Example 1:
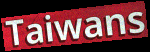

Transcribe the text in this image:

Taiwans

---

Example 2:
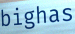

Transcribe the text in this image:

bighas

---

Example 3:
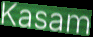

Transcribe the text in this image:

Kasam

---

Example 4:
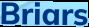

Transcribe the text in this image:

Briars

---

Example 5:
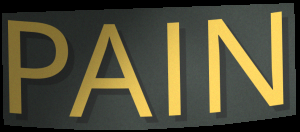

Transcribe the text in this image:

PAIN